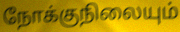
நோக்குநிலையும்